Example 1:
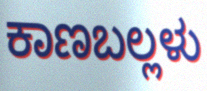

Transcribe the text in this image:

ಕಾಣಬಲ್ಲಳು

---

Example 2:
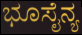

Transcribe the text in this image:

ಭೂಸೈನ್ಯ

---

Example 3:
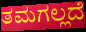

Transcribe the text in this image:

ತಮಗಲ್ಲದೆ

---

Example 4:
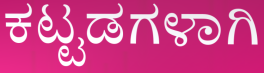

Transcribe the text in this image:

ಕಟ್ಟಡಗಳಾಗಿ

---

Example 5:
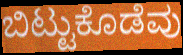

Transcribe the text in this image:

ಬಿಟ್ಟುಕೊಡೆವು